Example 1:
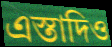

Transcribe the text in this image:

এস্তাদিও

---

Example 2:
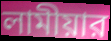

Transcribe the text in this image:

লামীয়ার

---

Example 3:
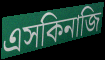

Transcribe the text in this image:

এসকিনাজি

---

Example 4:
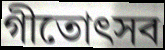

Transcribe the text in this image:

গীতোৎসব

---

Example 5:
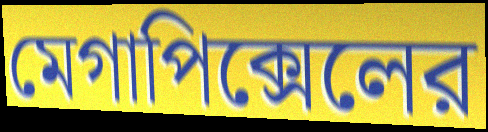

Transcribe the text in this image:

মেগাপিক্সেলের